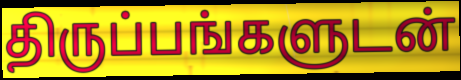
திருப்பங்களுடன்